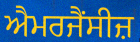
ਐਮਰਜੈਂਸੀਜ਼